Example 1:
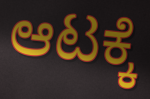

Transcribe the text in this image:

ಆಟಕ್ಕೆ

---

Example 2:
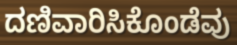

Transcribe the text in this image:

ದಣಿವಾರಿಸಿಕೊಂಡೆವು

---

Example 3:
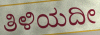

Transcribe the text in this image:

ತಿಳಿಯದೀ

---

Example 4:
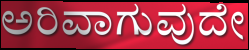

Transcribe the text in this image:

ಅರಿವಾಗುವುದೇ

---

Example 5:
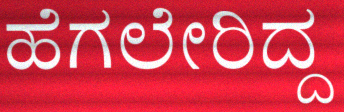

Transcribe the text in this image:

ಹೆಗಲೇರಿದ್ದ